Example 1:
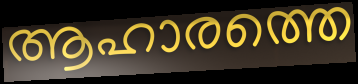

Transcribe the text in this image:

ആഹാരത്തെ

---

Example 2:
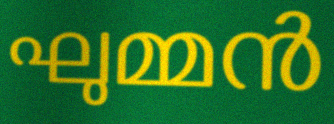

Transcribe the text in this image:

ഘുമ്മൻ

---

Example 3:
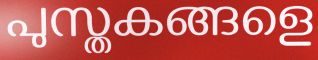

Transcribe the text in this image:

പുസ്തകങ്ങളെ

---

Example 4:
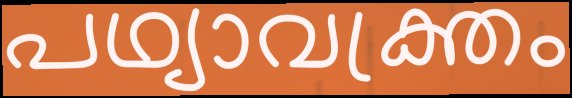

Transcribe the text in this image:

പഥ്യാവക്ത്രം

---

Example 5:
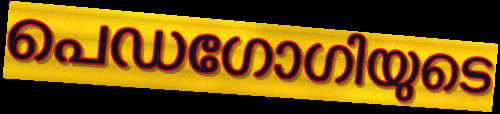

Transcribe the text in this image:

പെഡഗോഗിയുടെ